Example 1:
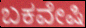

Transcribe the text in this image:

ಬಕವೇಷಿ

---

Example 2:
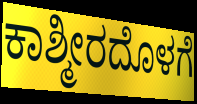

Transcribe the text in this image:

ಕಾಶ್ಮೀರದೊಳಗೆ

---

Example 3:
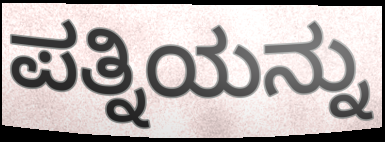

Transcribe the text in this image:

ಪತ್ನಿಯನ್ನು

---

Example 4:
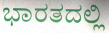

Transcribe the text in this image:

ಭಾರತದಲ್ಲಿ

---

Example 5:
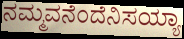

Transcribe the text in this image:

ನಮ್ಮವನೆಂದೆನಿಸಯ್ಯಾ